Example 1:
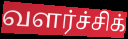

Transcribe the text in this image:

வளர்ச்சிக்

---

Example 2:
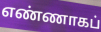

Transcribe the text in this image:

எண்ணாகப்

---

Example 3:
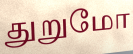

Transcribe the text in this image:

துறுமோ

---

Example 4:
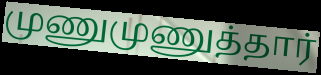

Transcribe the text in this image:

முணுமுணுத்தார்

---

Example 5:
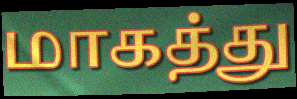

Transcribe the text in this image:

மாகத்து